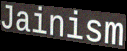
Jainism